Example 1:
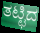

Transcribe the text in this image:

ತಟ್ಟಿದ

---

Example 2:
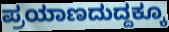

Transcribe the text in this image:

ಪ್ರಯಾಣದುದ್ದಕ್ಕೂ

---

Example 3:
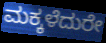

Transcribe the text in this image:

ಮಕ್ಕಳೆದುರೇ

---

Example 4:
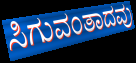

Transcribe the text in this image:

ಸಿಗುವಂತಾದವು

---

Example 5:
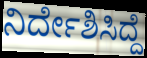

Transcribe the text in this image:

ನಿರ್ದೇಶಿಸಿದ್ದೆ